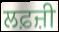
ਲਫ਼ਜ਼ੀ